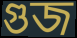
গুজ